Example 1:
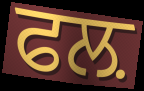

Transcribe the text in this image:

ਫਲ਼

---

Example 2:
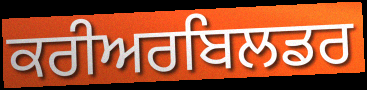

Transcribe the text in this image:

ਕਰੀਅਰਬਿਲਡਰ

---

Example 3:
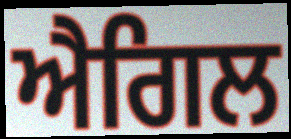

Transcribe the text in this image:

ਐਗਿਲ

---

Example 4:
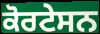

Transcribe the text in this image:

ਕੋਰਟੇਸਨ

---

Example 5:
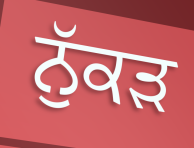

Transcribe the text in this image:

ਨੁੱਕਡ਼